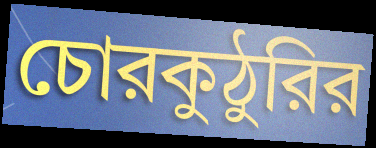
চোরকুঠুরির